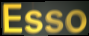
Esso